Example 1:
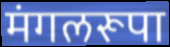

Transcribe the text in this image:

मंगलरूपा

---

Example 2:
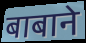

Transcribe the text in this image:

बाबाने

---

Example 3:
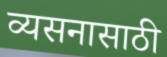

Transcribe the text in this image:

व्यसनासाठी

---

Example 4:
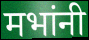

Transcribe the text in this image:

मभांनी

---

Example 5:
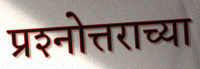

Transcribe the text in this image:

प्रश्नोत्तराच्या